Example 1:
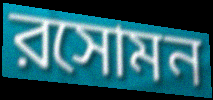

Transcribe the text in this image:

রসোমন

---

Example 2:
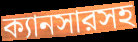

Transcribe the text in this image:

ক্যানসারসহ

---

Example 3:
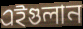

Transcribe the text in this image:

এইগুলান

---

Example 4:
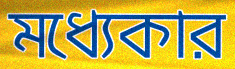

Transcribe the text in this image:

মধ্যেকার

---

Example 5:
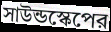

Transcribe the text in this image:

সাউন্ডস্কেপের